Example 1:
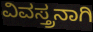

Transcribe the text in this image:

ವಿವಸ್ತ್ರನಾಗಿ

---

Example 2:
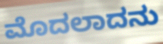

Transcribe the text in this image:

ಮೊದಲಾದನು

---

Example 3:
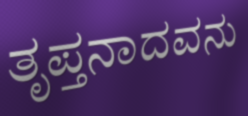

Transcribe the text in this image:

ತೃಪ್ತನಾದವನು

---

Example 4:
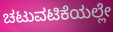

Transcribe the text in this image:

ಚಟುವಟಿಕೆಯಲ್ಲೇ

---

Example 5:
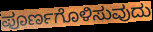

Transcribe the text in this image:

ಪೂರ್ಣಗೊಳಿಸುವುದು